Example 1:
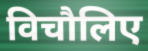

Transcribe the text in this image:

विचौलिए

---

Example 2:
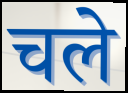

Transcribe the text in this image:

चले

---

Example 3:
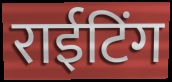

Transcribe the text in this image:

राईटिंग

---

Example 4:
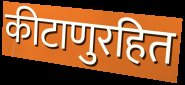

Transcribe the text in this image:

कीटाणुरहित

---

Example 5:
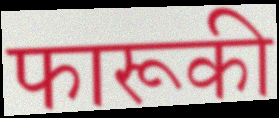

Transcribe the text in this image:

फारूकी